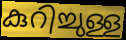
കുറിച്ചുള്ള